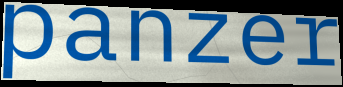
panzer